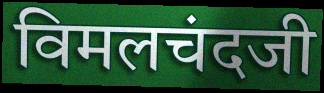
विमलचंदजी